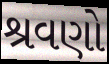
શ્રવણો